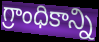
గ్రాంధికాన్ని